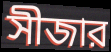
সীজার